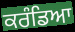
ਕਰੰਡਿਆ